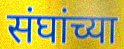
संघांच्या